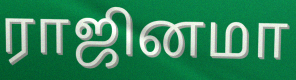
ராஜினமா